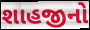
શાહજીનો